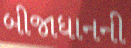
બીજાધાનની